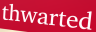
thwarted